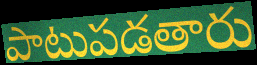
పాటుపడతారు